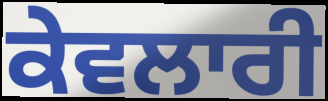
ਕੇਵਲਾਰੀ